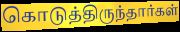
கொடுத்திருந்தார்கள்